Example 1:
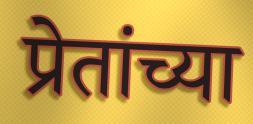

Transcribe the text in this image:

प्रेतांच्या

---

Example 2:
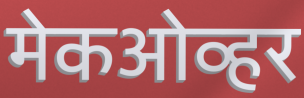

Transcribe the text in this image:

मेकओव्हर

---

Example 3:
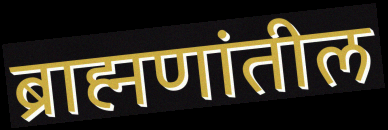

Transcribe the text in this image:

ब्राह्मणांतील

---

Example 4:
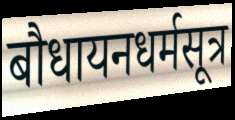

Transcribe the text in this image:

बौधायनधर्मसूत्र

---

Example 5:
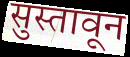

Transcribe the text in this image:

सुस्तावून